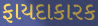
ફાયદાકારક